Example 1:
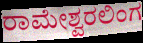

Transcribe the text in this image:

ರಾಮೇಶ್ವರಲಿಂಗ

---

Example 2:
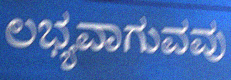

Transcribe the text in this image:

ಲಭ್ಯವಾಗುವವು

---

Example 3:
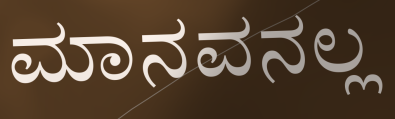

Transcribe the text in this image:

ಮಾನವನಲ್ಲ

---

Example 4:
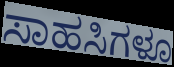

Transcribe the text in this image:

ಸಾಹಸಿಗಳೂ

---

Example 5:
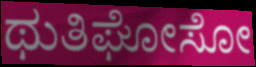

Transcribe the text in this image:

ಥುತಿಘೋಸೋ